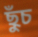
ছুঁচ